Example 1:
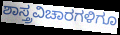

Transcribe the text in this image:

ಶಾಸ್ತ್ರವಿಚಾರಗಳಿಗೂ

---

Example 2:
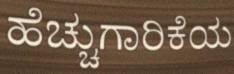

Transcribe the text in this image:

ಹೆಚ್ಚುಗಾರಿಕೆಯ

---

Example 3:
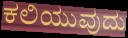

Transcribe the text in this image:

ಕಲಿಯುವುದು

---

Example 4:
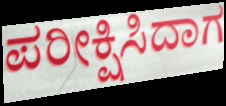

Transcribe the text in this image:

ಪರೀಕ್ಷಿಸಿದಾಗ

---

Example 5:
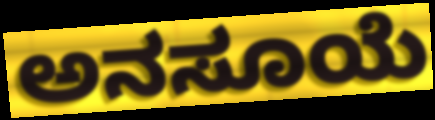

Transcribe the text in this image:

ಅನಸೂಯೆ